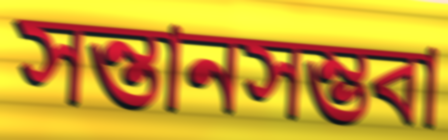
সন্তানসম্ভবা